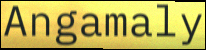
Angamaly